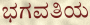
ಭಗವತಿಯ